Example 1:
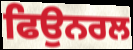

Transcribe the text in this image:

ਫਿਉਨਰਲ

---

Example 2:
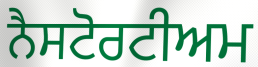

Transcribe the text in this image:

ਨੈਸਟੋਰਟੀਅਮ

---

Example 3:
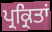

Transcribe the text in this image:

ਪ੍ਰਕ੍ਰਿਤਾਂ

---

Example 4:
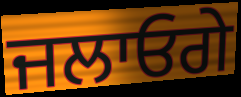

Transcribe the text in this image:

ਜਲਾਓਗੇ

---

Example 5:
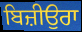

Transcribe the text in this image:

ਬਿਜ਼ੀਉਰਾ